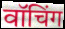
वॉचिंग